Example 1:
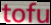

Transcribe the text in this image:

tofu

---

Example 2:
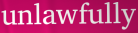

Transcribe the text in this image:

unlawfully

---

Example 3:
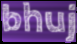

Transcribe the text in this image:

bhuj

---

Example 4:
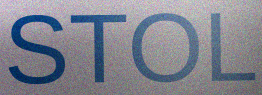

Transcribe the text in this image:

STOL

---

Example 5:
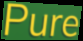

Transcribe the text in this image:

Pure